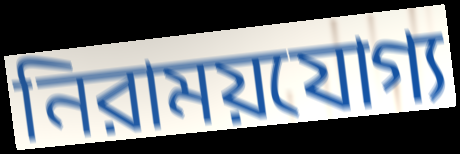
নিরাময়যোগ্য